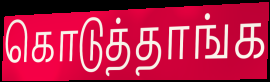
கொடுத்தாங்க